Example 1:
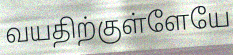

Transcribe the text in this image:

வயதிற்குள்ளேயே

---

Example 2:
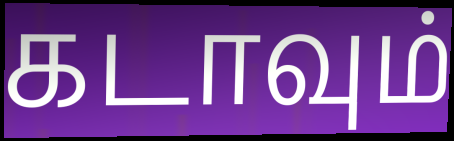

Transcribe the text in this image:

கடாவும்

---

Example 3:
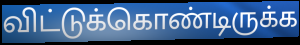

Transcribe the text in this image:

விட்டுக்கொண்டிருக்க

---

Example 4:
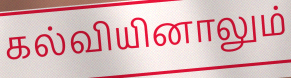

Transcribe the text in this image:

கல்வியினாலும்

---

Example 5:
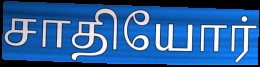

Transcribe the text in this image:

சாதியோர்